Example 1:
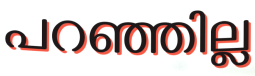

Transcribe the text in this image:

പറഞ്ഞില്ല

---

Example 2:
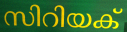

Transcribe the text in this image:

സിറിയക്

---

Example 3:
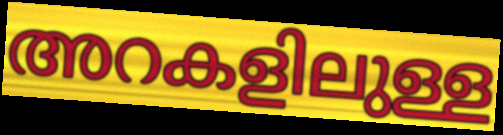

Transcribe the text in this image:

അറകളിലുള്ള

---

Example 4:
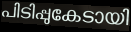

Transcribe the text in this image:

പിടിപ്പുകേടായി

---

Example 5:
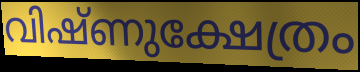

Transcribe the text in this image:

വിഷ്ണുക്ഷേത്രം